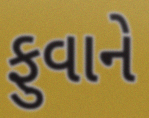
ફુવાને